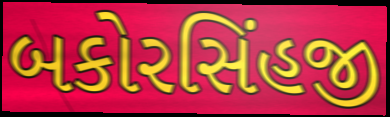
બકોરસિંહજી